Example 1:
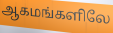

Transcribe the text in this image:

ஆகமங்களிலே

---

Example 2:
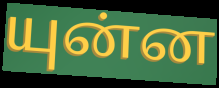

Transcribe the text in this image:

யுன்ன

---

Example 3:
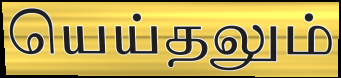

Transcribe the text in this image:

யெய்தலும்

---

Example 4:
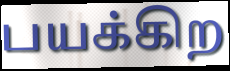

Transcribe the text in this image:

பயக்கிற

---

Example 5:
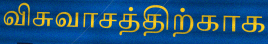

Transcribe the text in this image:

விசுவாசத்திற்காக